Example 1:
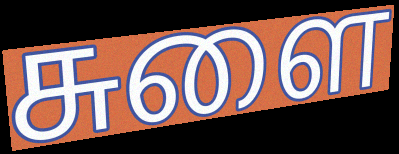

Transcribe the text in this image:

சுளை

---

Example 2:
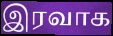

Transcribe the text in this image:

இரவாக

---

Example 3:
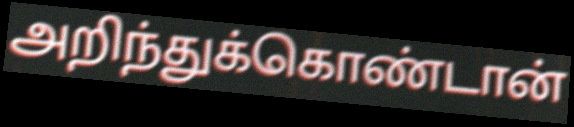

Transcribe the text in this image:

அறிந்துக்கொண்டான்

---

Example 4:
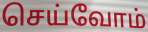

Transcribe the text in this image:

செய்வோம்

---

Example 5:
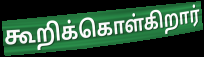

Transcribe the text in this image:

கூறிக்கொள்கிறார்